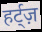
हर्ट्ज़